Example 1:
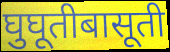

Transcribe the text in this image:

घुघूतीबासूती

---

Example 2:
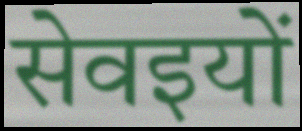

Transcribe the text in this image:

सेवइयों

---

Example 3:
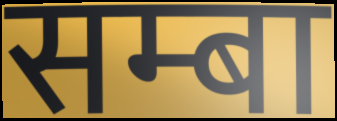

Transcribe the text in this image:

सम्बा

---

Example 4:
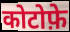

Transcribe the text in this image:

कोटोफ़े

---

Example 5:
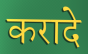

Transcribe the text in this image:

करादे